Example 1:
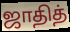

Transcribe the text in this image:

ஜாதித்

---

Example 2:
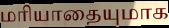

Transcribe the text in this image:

மரியாதையுமாக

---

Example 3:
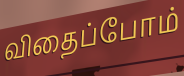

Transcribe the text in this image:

விதைப்போம்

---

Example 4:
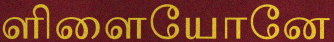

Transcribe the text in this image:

ளிளையோனே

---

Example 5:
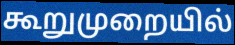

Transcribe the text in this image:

கூறுமுறையில்